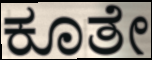
ಕೂತೇ